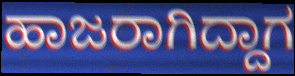
ಹಾಜರಾಗಿದ್ದಾಗ